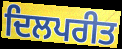
ਦਿਲਪਰੀਤ